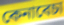
কেনাবেচা